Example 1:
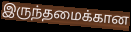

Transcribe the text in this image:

இருந்தமைக்கான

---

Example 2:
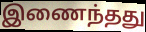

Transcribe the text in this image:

இணைந்தது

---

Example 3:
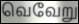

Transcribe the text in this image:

வெவேறு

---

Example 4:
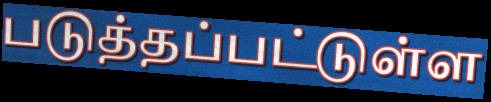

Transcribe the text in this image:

படுத்தப்பட்டுள்ள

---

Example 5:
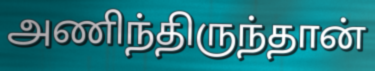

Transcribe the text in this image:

அணிந்திருந்தான்